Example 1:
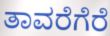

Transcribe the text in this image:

ತಾವರೆಗೆರೆ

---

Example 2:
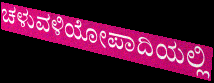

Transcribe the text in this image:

ಚಳುವಳಿಯೋಪಾದಿಯಲ್ಲಿ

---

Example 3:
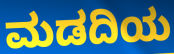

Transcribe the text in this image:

ಮಡದಿಯ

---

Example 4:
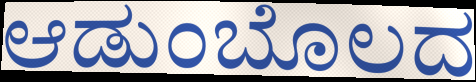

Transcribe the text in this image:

ಆಡುಂಬೊಲದ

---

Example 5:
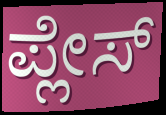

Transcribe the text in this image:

ಪ್ಲೇಸ್